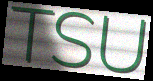
TSU